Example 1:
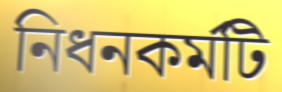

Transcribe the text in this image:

নিধনকর্মটি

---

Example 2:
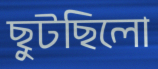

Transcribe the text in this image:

ছুটছিলো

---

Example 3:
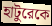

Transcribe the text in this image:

হাটুরেকে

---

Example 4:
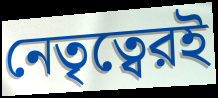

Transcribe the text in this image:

নেতৃত্বেরই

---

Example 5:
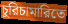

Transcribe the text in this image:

চুরিচামারিতে